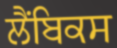
ਲੈਂਬਿਕਸ